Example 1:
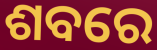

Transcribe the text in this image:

ଶବରେ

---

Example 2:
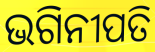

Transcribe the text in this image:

ଭଗିନୀପତି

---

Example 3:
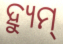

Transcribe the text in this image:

ହ୍ୟୁମ୍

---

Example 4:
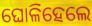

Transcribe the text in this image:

ଘୋଳିହେଲେ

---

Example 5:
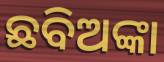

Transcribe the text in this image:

ଛବିଅଙ୍କା